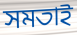
সমতাই